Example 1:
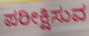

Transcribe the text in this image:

ಪರೀಕ್ಷಿಸುವ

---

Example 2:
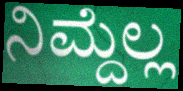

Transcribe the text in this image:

ನಿಮ್ದೆಲ್ಲ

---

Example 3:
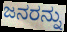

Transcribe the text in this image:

ಜನರನ್ನು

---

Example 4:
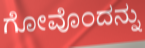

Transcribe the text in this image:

ಗೋವೊಂದನ್ನು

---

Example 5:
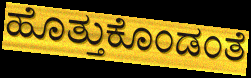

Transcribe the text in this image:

ಹೊತ್ತುಕೊಂಡಂತೆ